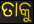
ତାକୁ